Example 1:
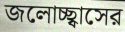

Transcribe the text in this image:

জলোচ্ছ্বাসের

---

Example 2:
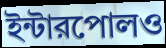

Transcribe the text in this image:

ইন্টারপোলও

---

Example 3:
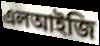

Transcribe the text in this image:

এলআইজি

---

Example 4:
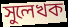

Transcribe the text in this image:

সুলেখক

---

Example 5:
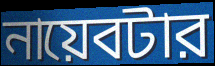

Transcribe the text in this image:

নায়েবটার